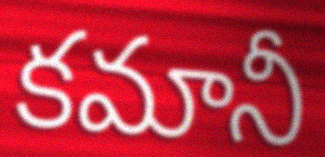
కమానీ